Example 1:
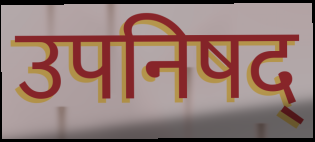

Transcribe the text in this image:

उपनिषद्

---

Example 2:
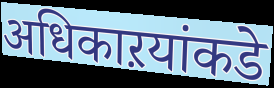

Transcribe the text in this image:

अधिकाऱयांकडे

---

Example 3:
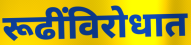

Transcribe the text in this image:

रूढींविरोधात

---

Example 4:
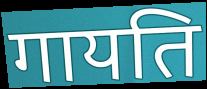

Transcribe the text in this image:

गायति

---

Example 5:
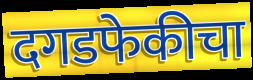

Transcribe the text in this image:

दगडफेकीचा